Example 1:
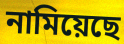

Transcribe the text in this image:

নামিয়েছে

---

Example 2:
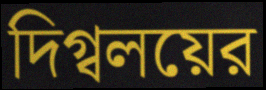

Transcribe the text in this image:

দিগ্বলয়ের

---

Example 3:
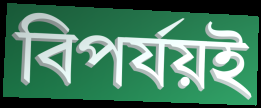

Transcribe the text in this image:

বিপর্যয়ই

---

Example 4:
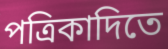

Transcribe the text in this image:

পত্রিকাদিতে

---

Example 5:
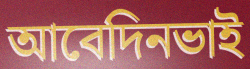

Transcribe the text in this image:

আবেদিনভাই